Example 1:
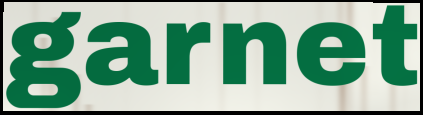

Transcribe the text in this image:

garnet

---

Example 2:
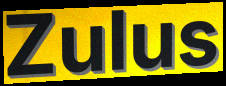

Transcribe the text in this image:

Zulus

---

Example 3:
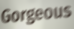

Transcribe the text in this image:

Gorgeous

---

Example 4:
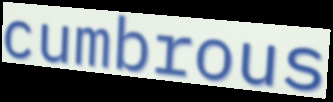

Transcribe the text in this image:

cumbrous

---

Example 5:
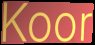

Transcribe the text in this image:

Koor